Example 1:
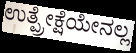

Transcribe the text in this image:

ಉತ್ಪ್ರೇಕ್ಷೆಯೇನಲ್ಲ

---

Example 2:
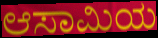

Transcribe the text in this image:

ಆಸಾಮಿಯ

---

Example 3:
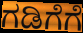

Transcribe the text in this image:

ಗಡಿಗೆಗೆ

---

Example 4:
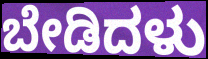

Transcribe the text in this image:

ಬೇಡಿದಳು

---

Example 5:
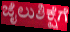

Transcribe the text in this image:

ಜೈಲುಶಿಕ್ಷೆಗೆ